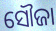
ସୌଜା